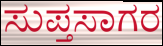
ಸುಪ್ತಸಾಗರ